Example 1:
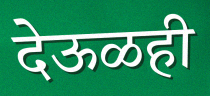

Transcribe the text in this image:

देऊळही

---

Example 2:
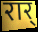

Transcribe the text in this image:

रार्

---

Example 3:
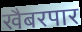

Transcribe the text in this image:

खैबरपार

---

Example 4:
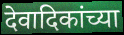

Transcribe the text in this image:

देवादिकांच्या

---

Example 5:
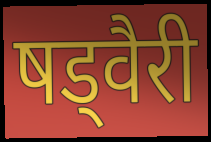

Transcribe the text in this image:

षड्वैरी